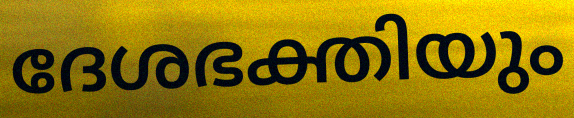
ദേശഭക്തിയും